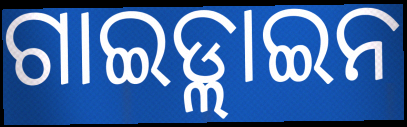
ଗାଇଡ୍ଲାଇନ